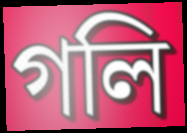
গলি